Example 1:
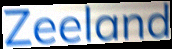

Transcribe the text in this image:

Zeeland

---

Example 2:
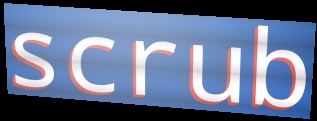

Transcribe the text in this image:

scrub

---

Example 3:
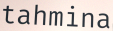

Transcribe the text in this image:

tahmina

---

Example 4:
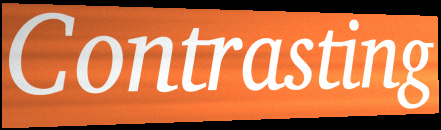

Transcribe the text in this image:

Contrasting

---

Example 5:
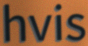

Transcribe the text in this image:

hvis